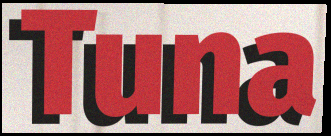
Tuna